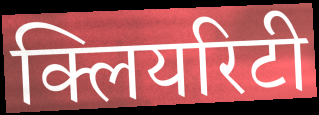
क्लियरिटी